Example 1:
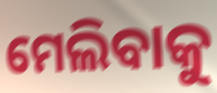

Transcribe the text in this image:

ମେଲିବାକୁ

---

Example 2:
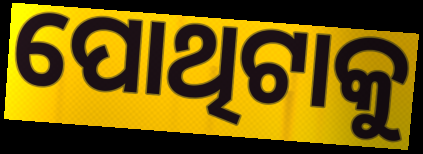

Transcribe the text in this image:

ପୋଥିଟାକୁ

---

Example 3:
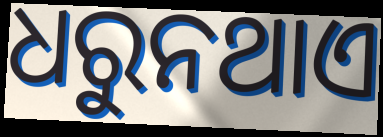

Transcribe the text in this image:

ଧରୁନଥାଏ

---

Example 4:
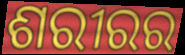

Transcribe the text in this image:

ଶରୀରର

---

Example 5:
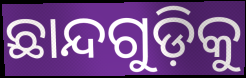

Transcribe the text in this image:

ଛାନ୍ଦଗୁଡ଼ିକୁ